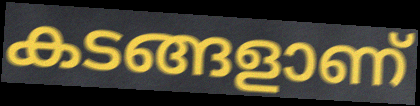
കടങ്ങളാണ്